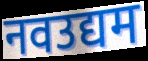
नवउद्यम